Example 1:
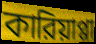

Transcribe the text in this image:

কারিয়াপ্পা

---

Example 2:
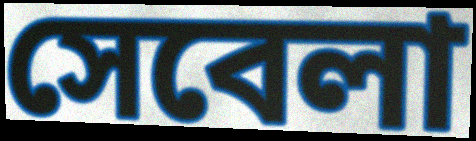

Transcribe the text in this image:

সেবেলা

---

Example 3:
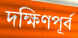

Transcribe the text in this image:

দক্ষিণপূর্ব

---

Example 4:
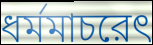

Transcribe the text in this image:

ধর্মমাচরেৎ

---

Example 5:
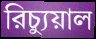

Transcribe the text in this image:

রিচ্যুয়াল